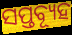
ସପ୍ତବ୍ୟୂହ